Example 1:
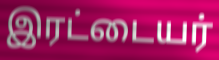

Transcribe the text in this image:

இரட்டையர்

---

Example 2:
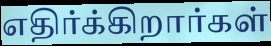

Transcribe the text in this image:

எதிர்க்கிறார்கள்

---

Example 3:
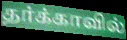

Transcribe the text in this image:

தர்க்காவில்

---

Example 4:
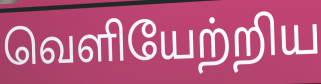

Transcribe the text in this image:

வெளியேற்றிய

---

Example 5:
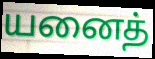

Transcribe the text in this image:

யனைத்